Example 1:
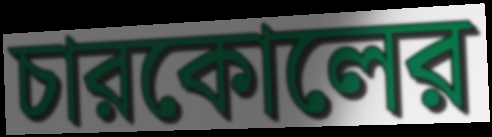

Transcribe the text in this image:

চারকোলের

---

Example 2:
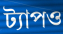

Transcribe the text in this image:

ট্যাপও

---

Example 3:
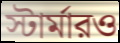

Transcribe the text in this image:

স্টার্মারও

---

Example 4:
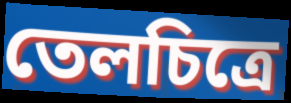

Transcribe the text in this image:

তেলচিত্রে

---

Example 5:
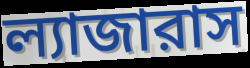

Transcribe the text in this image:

ল্যাজারাস